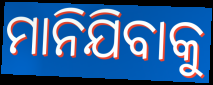
ମାନିଯିବାକୁ